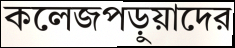
কলেজপড়ুয়াদের